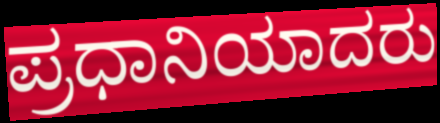
ಪ್ರಧಾನಿಯಾದರು